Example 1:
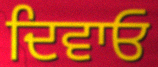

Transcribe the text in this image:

ਦਿਵਾਓ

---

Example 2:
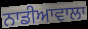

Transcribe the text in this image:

ਨਾਡੀਆਵਾਲਾ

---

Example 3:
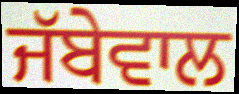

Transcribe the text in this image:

ਜੱਬੇਵਾਲ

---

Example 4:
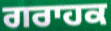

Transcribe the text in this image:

ਗਰਾਹਕ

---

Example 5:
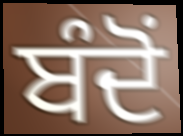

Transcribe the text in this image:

ਬੰਦੋਂ